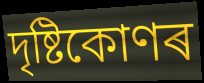
দৃষ্টিকোণৰ